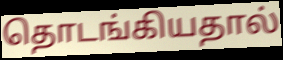
தொடங்கியதால்